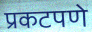
प्रकटपणे